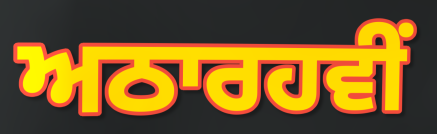
ਅਠਾਰਹਵੀਂ